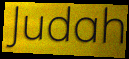
Judah